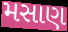
મસાણ